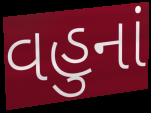
વહુનાં